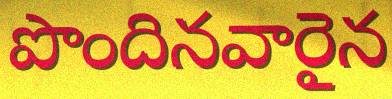
పొందినవారైన